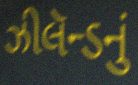
ઝીલૅન્ડનું